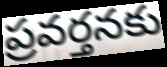
ప్రవర్తనకు